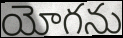
యోగను